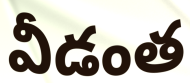
వీడంత